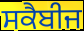
ਸਕੈਬੀਜ